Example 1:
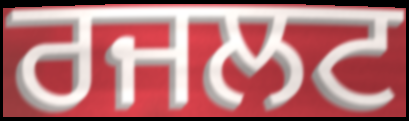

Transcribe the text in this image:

ਰਜਲਟ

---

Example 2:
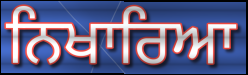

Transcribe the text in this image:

ਨਿਖਾਰਿਆ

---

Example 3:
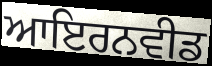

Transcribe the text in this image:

ਆਇਰਨਵੀਡ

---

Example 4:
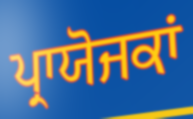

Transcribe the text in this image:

ਪ੍ਰਾਯੋਜਕਾਂ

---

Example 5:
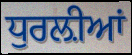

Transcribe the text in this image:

ਧੁਰਲ਼ੀਆਂ